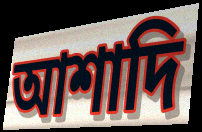
আশাদি